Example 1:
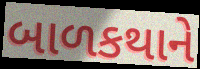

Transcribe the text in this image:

બાળકથાને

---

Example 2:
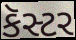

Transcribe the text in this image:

કૅસ્ટર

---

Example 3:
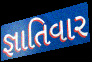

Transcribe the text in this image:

જ્ઞાતિવાર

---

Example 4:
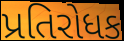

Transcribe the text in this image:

પ્રતિરોધક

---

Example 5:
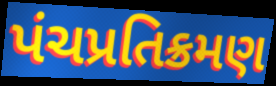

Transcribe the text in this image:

પંચપ્રતિક્રમણ